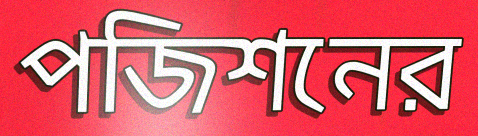
পজিশনের